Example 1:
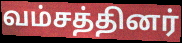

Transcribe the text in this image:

வம்சத்தினர்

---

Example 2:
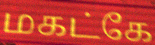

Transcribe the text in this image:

மகட்கே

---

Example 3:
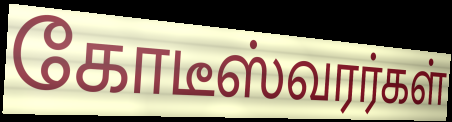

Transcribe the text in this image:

கோடீஸ்வரர்கள்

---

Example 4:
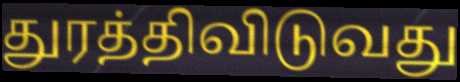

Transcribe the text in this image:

துரத்திவிடுவது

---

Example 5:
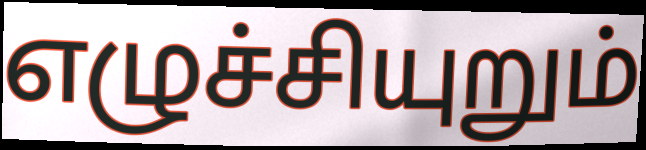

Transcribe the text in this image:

எழுச்சியுறும்